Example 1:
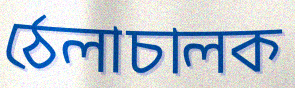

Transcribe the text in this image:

ঠেলাচালক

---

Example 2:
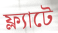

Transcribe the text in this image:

ফ্ল্যাটে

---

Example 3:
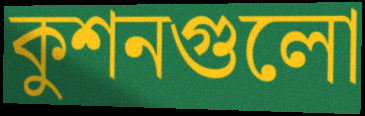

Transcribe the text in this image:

কুশনগুলো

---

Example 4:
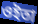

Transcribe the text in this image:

ওইতা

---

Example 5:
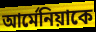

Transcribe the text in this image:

আর্মেনিয়াকে